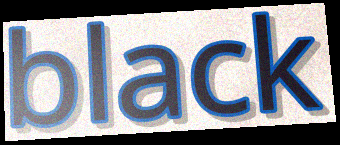
black